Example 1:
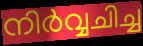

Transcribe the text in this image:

നിർവ്വചിച്ച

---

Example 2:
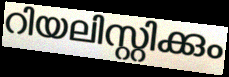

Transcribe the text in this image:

റിയലിസ്റ്റിക്കും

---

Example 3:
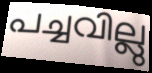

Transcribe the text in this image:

പച്ചവില്ലു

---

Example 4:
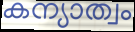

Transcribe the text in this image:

കന്യാത്വം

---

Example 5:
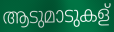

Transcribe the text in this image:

ആടുമാടുകള്